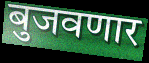
बुजवणार